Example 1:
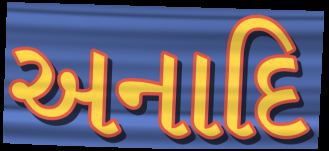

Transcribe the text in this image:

અનાદિ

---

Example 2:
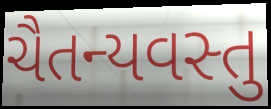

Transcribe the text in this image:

ચૈતન્યવસ્તુ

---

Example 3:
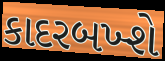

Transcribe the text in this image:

કાદરબખ્શે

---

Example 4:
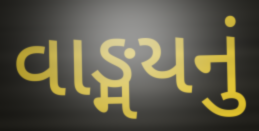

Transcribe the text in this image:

વાઙ્મયનું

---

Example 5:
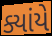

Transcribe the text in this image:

ક્યાંયે